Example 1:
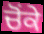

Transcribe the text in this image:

ਚੋਂਕੇ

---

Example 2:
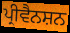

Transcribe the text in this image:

ਪ੍ਰੀਵੈਨਸ਼ਨ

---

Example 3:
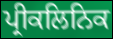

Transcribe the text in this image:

ਪ੍ਰੀਕਲਿਨਿਕ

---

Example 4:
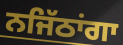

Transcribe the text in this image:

ਨਜਿੱਠਾਂਗਾ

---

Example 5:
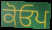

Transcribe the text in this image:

ਕੋਓਪ